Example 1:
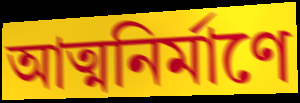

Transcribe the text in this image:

আত্মনির্মাণে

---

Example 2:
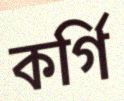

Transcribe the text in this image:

কর্গি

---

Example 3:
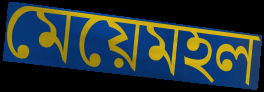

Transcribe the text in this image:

মেয়েমহল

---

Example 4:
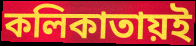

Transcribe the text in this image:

কলিকাতায়ই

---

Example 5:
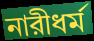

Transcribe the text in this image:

নারীধর্ম